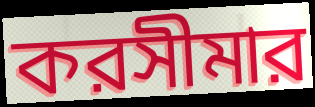
করসীমার